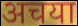
अचया